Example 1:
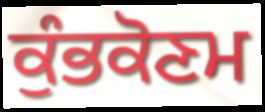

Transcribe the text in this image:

ਕੁੰਭਕੋਣਮ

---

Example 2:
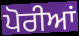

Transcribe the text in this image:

ਪੋਰੀਆਂ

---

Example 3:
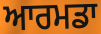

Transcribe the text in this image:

ਆਰਮਡਾ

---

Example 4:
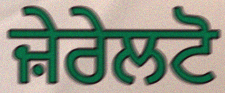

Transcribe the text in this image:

ਜ਼ੇਰੇਲਟੋ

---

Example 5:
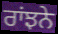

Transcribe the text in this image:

ਰਾਂਝਨੇ